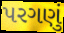
પરગણું